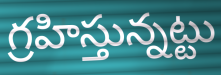
గ్రహిస్తున్నట్టు